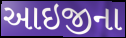
આઇજીના